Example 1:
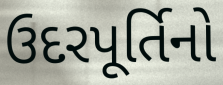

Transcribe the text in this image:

ઉદરપૂર્તિનો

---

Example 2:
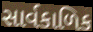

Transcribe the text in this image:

સાર્વકાળિક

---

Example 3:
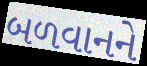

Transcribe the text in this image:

બળવાનને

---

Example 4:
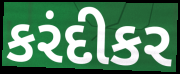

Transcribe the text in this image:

કરંદીકર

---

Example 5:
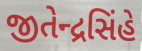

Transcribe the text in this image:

જીતેન્દ્રસિંહે